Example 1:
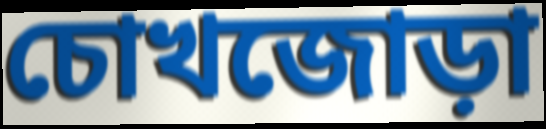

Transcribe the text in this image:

চোখজোড়া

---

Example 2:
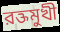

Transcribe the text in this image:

রক্তমুখী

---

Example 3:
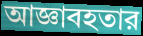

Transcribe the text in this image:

আজ্ঞাবহতার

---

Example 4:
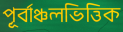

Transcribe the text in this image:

পূর্বাঞ্চলভিত্তিক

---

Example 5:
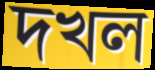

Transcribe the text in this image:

দখল